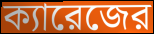
ক্যারেজের